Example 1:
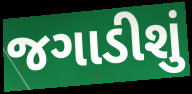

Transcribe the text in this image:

જગાડીશું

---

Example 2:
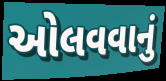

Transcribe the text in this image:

ઓલવવાનું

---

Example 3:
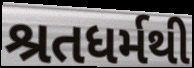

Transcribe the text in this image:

શ્રતધર્મથી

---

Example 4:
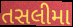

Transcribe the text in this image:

તસલીમા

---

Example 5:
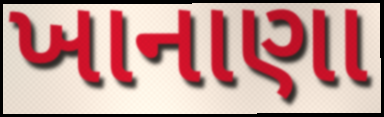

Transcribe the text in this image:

ખાનાણા